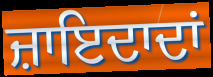
ਜ਼ਾਇਦਾਦਾਂ